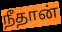
நீதான்